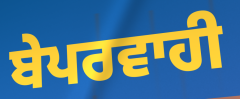
ਬੇਪਰਵਾਹੀ